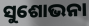
ସୁଶୋଭନା